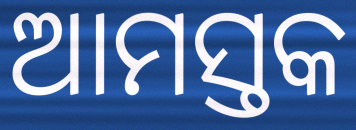
ଆମସ୍ତକ